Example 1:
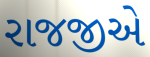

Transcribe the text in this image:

રાજજીએ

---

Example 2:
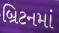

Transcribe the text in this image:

બ્રિટનમાં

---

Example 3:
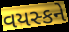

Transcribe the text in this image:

વયસ્કને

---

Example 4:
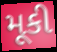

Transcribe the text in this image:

મૂકી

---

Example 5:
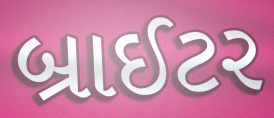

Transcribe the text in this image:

બ્રાઈટર